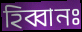
হিব্বানঃ